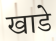
खाडे